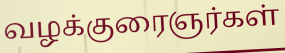
வழக்குரைஞர்கள்